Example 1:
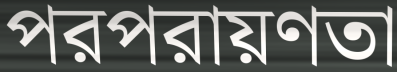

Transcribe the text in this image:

পরপরায়ণতা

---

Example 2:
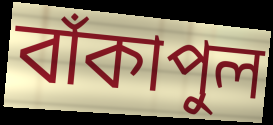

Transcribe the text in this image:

বাঁকাপুল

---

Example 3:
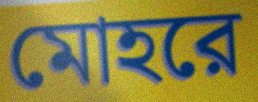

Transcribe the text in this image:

মোহরে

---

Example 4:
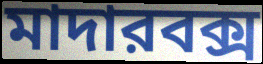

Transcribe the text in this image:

মাদারবক্স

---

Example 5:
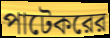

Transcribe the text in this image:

পাটেকরের